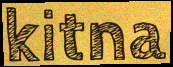
kitna